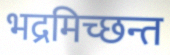
भद्रमिच्छन्त